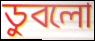
ডুবলো